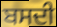
ਬਸਦੀ